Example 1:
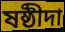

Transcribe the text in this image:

ষষ্ঠীদা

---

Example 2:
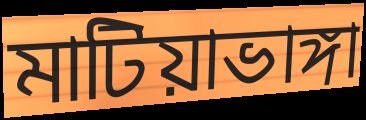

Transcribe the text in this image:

মাটিয়াভাঙ্গা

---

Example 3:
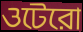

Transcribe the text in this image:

ওটেরো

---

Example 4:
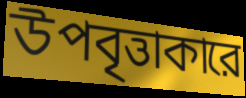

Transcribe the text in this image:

উপবৃত্তাকারে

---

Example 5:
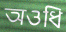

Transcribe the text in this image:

অওধি